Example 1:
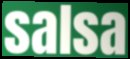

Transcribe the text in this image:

salsa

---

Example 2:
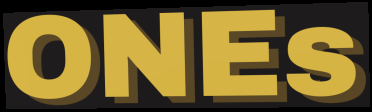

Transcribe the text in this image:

ONEs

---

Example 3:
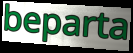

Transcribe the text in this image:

beparta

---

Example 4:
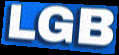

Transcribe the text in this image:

LGB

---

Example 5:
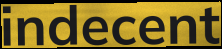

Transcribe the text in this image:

indecent